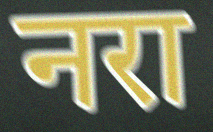
नरा